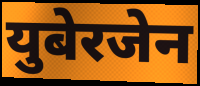
युबेरजेन